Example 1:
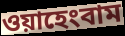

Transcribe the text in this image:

ওয়াহেংবাম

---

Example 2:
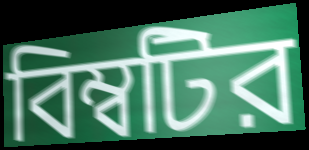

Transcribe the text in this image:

বিম্বটির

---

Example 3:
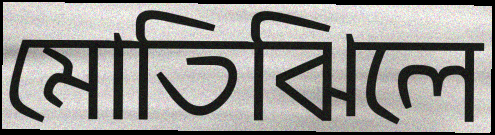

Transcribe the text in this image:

মোতিঝিলে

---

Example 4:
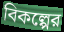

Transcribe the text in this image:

বিকল্পের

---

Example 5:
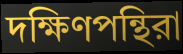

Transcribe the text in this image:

দক্ষিণপন্থিরা